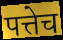
पत्तेच